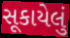
સૂકાયેલું